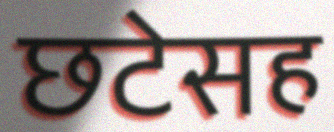
छटेसह